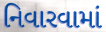
નિવારવામાં